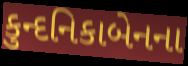
કુન્દનિકાબેનના